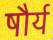
षौर्य